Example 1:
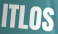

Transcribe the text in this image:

ITLOS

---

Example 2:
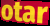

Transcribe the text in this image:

otar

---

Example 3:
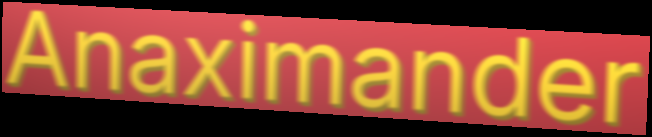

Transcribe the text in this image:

Anaximander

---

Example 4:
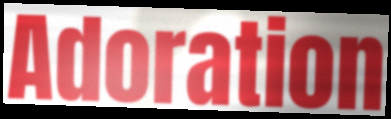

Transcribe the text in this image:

Adoration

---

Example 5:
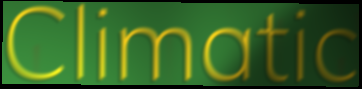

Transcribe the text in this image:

Climatic